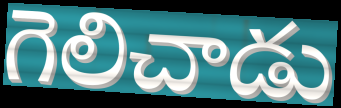
గెలిచాడు